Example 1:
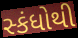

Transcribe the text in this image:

સ્કંધોથી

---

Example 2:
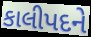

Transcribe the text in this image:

કાલીપદને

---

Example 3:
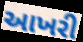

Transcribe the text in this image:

આખરી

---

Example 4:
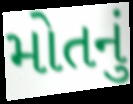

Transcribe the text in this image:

મોતનું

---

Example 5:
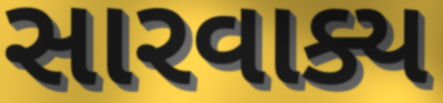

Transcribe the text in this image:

સારવાક્ય